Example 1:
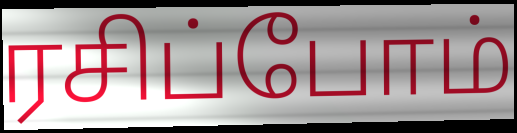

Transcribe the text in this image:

ரசிப்போம்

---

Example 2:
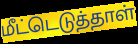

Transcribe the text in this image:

மீட்டெடுத்தாள்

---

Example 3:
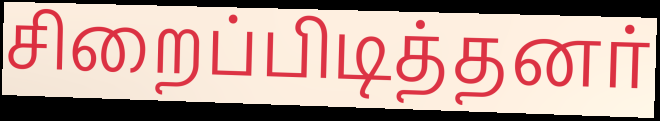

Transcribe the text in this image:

சிறைப்பிடித்தனர்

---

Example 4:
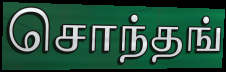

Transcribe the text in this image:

சொந்தங்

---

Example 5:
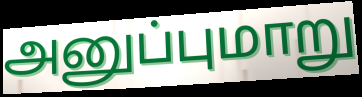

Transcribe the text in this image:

அனுப்புமாறு